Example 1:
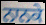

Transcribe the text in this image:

ਨਾਨਕੇ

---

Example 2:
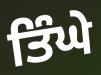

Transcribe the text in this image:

ਤਿੰਘੇ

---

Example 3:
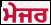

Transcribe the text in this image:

ਮੇਜਰ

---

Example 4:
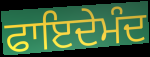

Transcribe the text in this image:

ਫਾਇਦੇਮੰਦ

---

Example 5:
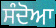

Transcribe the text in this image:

ਸੰਦੋਆ